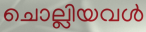
ചൊല്ലിയവൾ